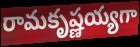
రామకృష్ణయ్యగా